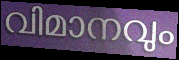
വിമാനവും